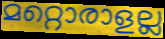
മറ്റൊരാളല്ല